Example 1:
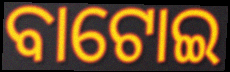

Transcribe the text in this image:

ବାଟୋଇ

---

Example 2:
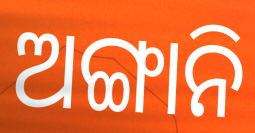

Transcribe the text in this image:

ଅଙ୍ଗାନି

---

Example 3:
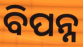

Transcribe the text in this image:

ବିପନ୍ନ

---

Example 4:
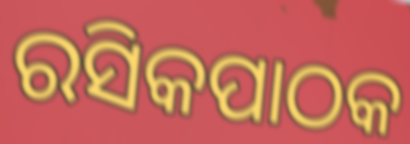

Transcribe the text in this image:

ରସିକପାଠକ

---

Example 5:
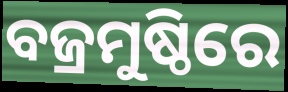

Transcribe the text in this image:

ବଜ୍ରମୁଷ୍ଠିରେ